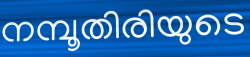
നമ്പൂതിരിയുടെ